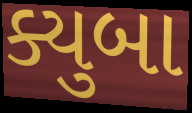
ક્યુબા